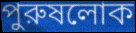
পুরুষলোক